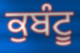
ਕੁਬੰਟੂ